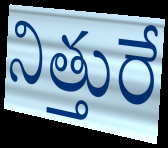
నిత్తురే